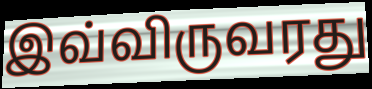
இவ்விருவரது